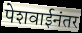
पेशवाईनंतर